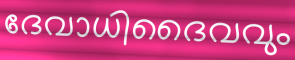
ദേവാധിദൈവവും